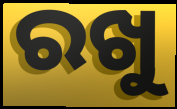
ରଖୁ